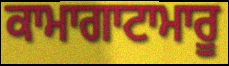
ਕਾਮਾਗਾਟਾਮਾਰੂ